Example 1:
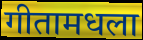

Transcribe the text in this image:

गीतामधला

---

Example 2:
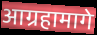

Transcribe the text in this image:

आग्रहामागे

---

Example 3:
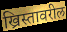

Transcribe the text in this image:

ख्रिस्तावरील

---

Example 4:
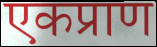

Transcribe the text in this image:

एकप्राण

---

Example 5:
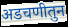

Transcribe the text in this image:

अडचणीतुन